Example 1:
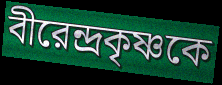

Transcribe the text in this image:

বীরেন্দ্রকৃষ্ণকে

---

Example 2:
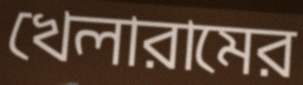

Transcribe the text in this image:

খেলারামের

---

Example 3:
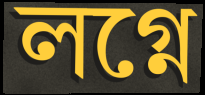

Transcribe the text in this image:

লগ্নে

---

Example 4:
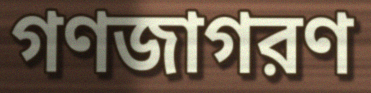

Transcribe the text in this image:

গণজাগরণ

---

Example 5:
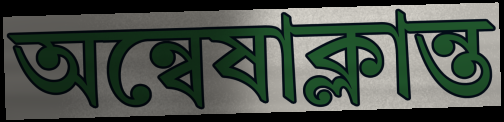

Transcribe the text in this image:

অন্বেষাক্লান্ত